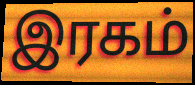
இரகம்